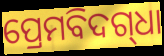
ପ୍ରେମବିଦଗ୍‍ଧା